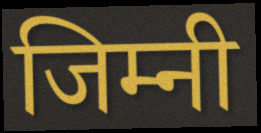
जिम्नी